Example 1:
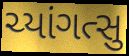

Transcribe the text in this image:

ચ્યાંગત્સુ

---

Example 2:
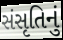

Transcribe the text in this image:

સંસૃતિનું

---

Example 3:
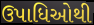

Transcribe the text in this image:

ઉપાધિઓથી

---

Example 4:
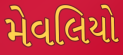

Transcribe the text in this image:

મેવલિયો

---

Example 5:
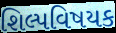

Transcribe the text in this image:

શિલ્પવિષયક